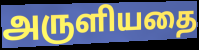
அருளியதை